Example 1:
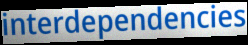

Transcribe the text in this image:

interdependencies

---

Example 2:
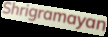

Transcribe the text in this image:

Shrigramayan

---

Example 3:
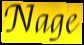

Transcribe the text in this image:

Nage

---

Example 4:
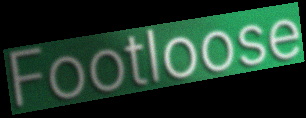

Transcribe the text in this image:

Footloose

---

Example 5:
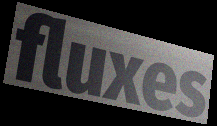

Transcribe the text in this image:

fluxes